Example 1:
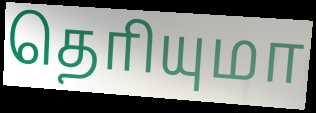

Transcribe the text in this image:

தெரியுமா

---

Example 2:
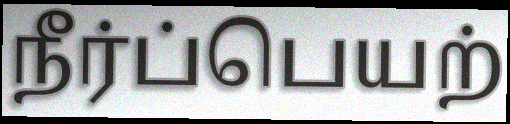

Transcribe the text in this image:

நீர்ப்பெயற்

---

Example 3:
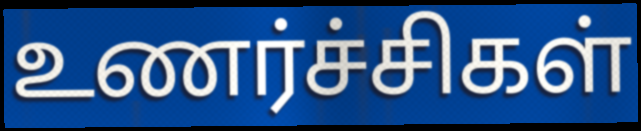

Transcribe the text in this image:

உணர்ச்சிகள்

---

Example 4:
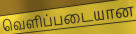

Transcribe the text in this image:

வெளிப்படையான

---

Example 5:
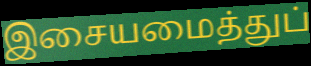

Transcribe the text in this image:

இசையமைத்துப்